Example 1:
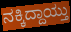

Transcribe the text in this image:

ನಕ್ಕಿದ್ದಾಯ್ತು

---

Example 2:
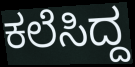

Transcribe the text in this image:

ಕಲೆಸಿದ್ದ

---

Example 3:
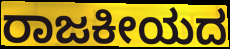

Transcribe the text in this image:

ರಾಜಕೀಯದ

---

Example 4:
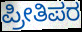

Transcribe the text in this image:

ಪ್ರೀತಿಪರ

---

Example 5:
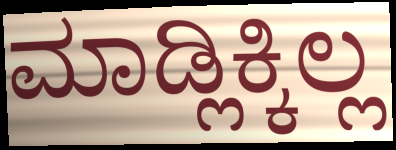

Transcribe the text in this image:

ಮಾಡ್ಲಿಕ್ಕಿಲ್ಲ